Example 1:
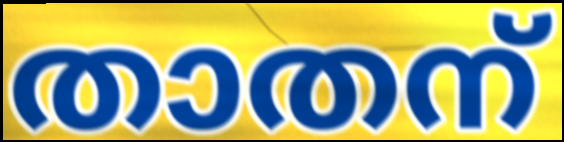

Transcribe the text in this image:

താതന്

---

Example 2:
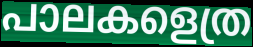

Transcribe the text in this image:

പാലകളെത്ര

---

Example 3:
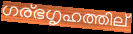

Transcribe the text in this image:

ഗര്ഭഗൃഹത്തില്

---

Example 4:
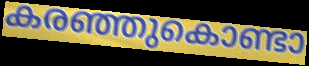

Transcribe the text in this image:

കരഞ്ഞുകൊണ്ടാ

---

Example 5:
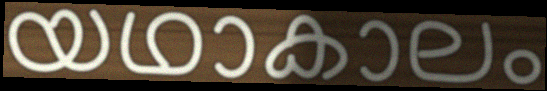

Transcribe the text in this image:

യഥാകാലം